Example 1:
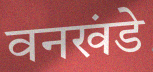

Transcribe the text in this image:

वनखंडे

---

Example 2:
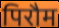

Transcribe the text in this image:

पिरौम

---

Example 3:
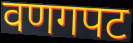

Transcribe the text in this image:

वणगपट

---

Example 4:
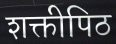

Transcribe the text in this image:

शक्तीपिठ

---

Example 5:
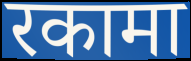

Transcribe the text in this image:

रकामा